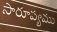
సారూప్యము